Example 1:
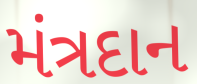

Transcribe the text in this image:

મંત્રદાન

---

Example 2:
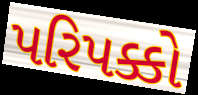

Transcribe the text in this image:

પરિપક્કો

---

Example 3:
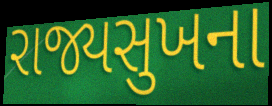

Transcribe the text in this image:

રાજ્યસુખના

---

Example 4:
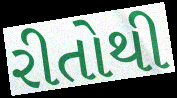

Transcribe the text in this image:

રીતોથી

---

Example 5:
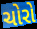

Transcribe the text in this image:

ચોરો